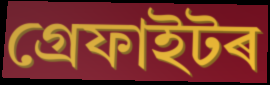
গ্ৰেফাইটৰ